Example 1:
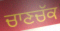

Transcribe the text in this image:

ਚਾਣਚੱਕ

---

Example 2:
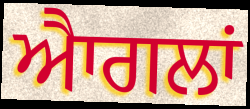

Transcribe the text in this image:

ਐਾਗਲਾਂ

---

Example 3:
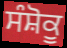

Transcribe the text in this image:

ਸੰਸ਼ੋਕੂ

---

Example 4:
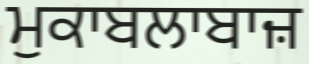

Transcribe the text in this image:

ਮੁਕਾਬਲਾਬਾਜ਼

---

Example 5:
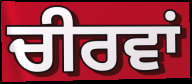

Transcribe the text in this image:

ਚੀਰਵਾਂ